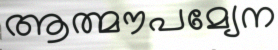
ആത്മൗപമ്യേന